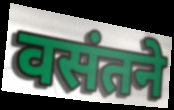
वसंतने